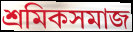
শ্রমিকসমাজ